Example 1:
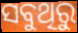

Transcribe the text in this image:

ସବୁଥିରୁ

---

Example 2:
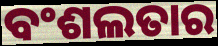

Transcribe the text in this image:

ବଂଶଲତାର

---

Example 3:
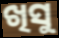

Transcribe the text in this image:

ଖିସୁ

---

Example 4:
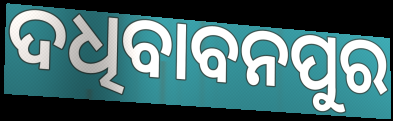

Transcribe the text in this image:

ଦଧିବାବନପୁର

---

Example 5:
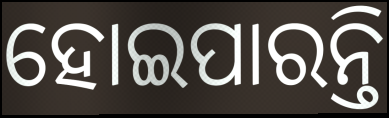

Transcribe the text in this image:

ହୋଇପାରନ୍ତି